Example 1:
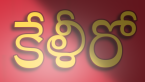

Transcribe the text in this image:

కేళీరో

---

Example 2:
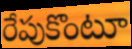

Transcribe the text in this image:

రేపుకొంటూ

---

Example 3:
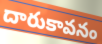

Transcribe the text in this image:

దారుకావనం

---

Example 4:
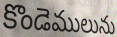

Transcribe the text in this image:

కొండెములును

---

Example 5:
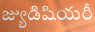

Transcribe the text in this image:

జ్యుడిషియరీ